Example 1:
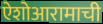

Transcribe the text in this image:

ऐशोआरामाची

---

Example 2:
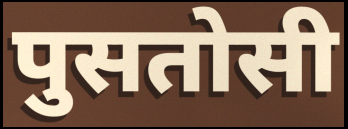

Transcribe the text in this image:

पुसतोसी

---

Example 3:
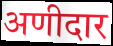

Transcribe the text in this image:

अणीदार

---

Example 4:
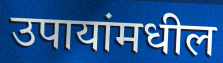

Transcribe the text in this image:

उपायांमधील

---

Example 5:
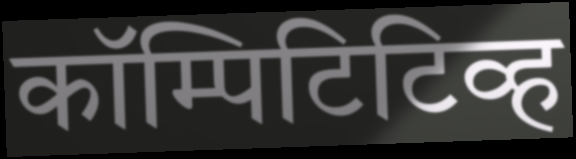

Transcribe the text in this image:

कॉम्पिटिटिव्ह